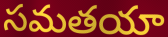
సమతయా